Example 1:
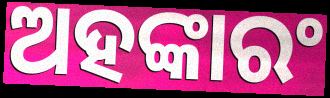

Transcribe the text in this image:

ଅହଙ୍କାରଂ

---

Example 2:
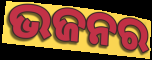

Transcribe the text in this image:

ଭଜନର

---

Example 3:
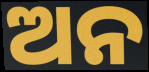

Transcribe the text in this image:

ଅନ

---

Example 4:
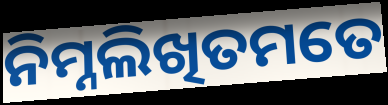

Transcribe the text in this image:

ନିମ୍ନଲିଖିତମତେ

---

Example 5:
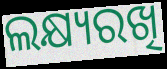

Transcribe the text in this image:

ଲକ୍ଷ୍ୟରଖି